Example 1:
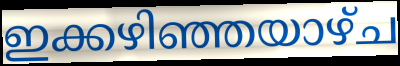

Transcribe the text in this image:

ഇക്കഴിഞ്ഞയാഴ്ച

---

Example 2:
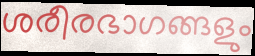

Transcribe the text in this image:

ശരീരഭാഗങ്ങളും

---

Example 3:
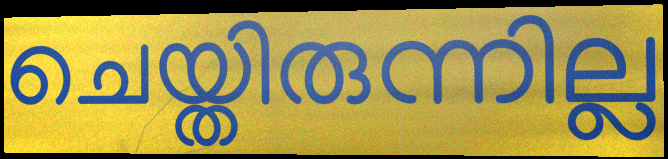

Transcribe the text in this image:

ചെയ്തിരുന്നില്ല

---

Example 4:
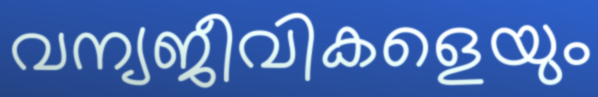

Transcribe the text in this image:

വന്യജീവികളെയും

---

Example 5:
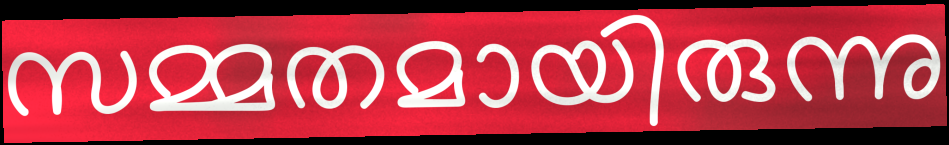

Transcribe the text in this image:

സമ്മതമായിരുന്നു